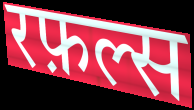
रफ़ल्स